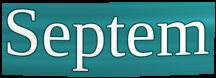
Septem